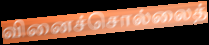
வினைச்சொல்லைத்